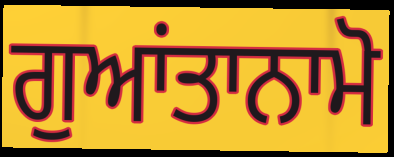
ਗੁਆਂਤਾਨਾਮੋ